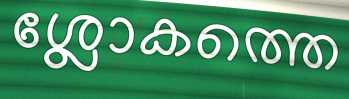
ശ്ലോകത്തെ